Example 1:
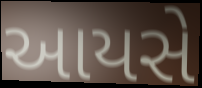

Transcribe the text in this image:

આયસે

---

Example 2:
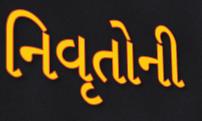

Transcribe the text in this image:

નિવૃતોની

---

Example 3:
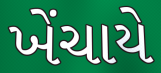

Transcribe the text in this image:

ખેંચાયે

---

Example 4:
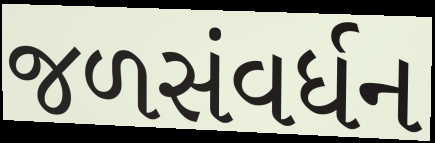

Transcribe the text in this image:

જળસંવર્ધન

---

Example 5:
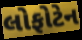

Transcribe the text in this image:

લોફોટેન